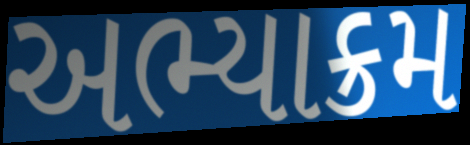
અભ્યાક્રમ